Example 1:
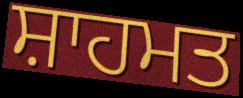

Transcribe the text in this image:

ਸ਼ਾਹਮਤ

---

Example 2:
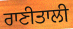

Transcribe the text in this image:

ਰਾਣੀਤਾਲੀ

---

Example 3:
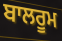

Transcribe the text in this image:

ਬਾਲਰੂਮ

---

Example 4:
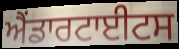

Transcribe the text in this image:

ਐਂਡਾਰਟਾਈਟਸ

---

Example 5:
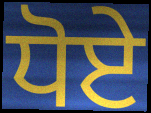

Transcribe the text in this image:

ਧੋਏ